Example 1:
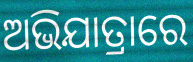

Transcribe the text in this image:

ଅଭିଯାତ୍ରାରେ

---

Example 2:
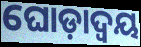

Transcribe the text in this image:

ଘୋଡ଼ାଦ୍ୱୟ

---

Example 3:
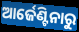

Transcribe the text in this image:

ଆର୍ଜେଣ୍ଟିନାରୁ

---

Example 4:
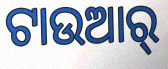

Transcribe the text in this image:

ଟାଉଆର୍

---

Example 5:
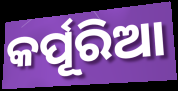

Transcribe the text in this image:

କର୍ପୂରିଆ